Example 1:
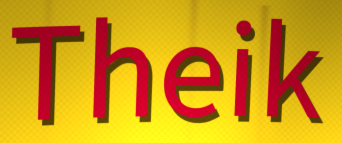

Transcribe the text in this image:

Theik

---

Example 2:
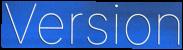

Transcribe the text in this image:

Version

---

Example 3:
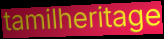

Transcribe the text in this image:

tamilheritage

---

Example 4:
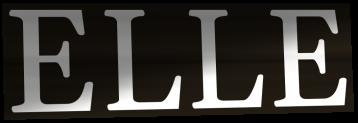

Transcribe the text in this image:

ELLE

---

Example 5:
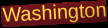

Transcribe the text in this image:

Washington